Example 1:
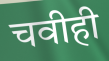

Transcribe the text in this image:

चवीही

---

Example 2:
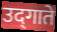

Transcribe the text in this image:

उद्‌गाते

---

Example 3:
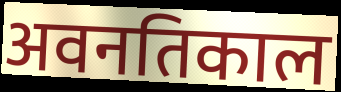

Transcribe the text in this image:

अवनतिकाल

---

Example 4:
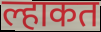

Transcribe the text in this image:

ल्हाकत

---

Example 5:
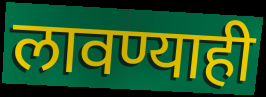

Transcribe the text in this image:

लावण्याही